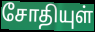
சோதியுள்